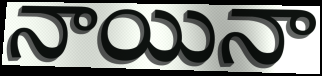
నాయినా